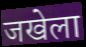
जखेला